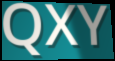
QXY